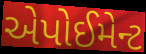
એપોઈમેન્ટ